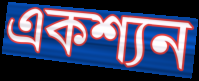
একশ্যন